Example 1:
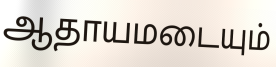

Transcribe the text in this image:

ஆதாயமடையும்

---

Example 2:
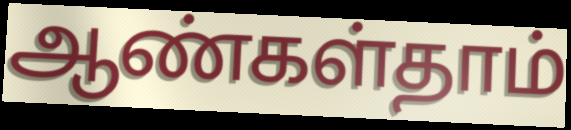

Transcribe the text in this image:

ஆண்கள்தாம்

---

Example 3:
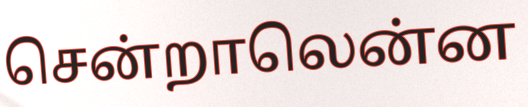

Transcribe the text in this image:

சென்றாலென்ன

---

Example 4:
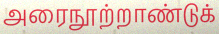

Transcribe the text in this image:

அரைநூற்றாண்டுக்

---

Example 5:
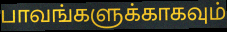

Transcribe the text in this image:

பாவங்களுக்காகவும்